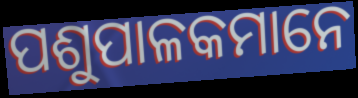
ପଶୁପାଳକମାନେ